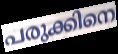
പരുക്കിനെ